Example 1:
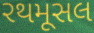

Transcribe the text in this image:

રથમૂસલ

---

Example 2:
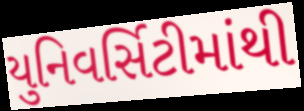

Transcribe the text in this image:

યુનિવર્સિટીમાંથી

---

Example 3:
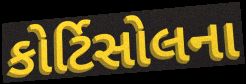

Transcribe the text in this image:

કોર્ટિસોલના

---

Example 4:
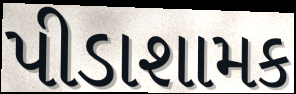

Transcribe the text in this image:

પીડાશામક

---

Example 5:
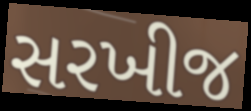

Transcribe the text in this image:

સરખીજ